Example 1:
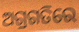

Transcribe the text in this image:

ଅଗ୍ରଗତିରେ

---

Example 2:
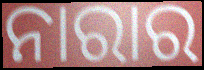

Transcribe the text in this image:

ନାରାର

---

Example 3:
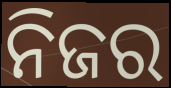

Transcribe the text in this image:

ନିଜର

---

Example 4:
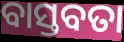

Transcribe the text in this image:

ବାସ୍ତବତା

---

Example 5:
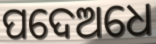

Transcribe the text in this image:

ପଦେଅଧେ